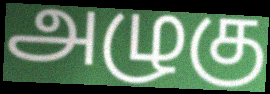
அழுகு